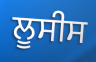
ਲੂਸੀਸ